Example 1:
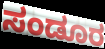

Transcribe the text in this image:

ಸಂಡೂರ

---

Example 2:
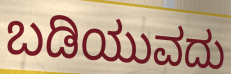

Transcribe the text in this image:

ಬಡಿಯುವದು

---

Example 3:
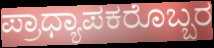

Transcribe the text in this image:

ಪ್ರಾಧ್ಯಾಪಕರೊಬ್ಬರ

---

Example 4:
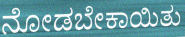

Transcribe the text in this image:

ನೋಡಬೇಕಾಯಿತು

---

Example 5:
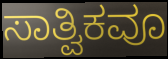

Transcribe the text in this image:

ಸಾತ್ವಿಕವೂ